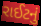
રાઈટનું